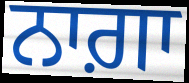
ਨਾਗ਼ਾ